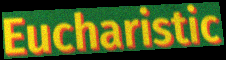
Eucharistic